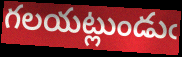
గలయట్లుండుఁ